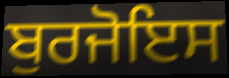
ਬੁਰਜੋਇਸ